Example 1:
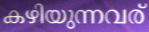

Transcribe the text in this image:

കഴിയുന്നവര്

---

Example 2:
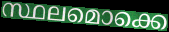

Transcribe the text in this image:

സ്ഥലമൊക്കെ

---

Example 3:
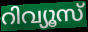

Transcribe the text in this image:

റിവ്യൂസ്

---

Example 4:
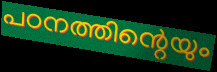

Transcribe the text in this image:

പഠനത്തിന്റെയും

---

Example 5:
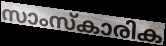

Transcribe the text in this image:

സാംസ്കാരിക